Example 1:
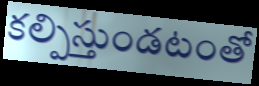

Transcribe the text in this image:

కల్పిస్తుండటంతో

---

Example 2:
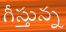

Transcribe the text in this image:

గీస్తున్న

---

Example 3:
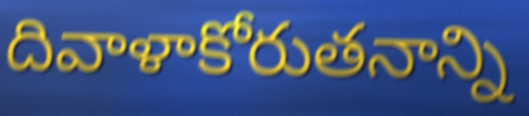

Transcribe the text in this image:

దివాళాకోరుతనాన్ని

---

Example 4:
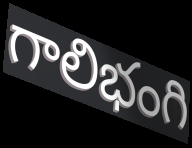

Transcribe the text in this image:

గాలిభంగి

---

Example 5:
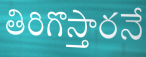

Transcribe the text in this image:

తిరిగొస్తారనే